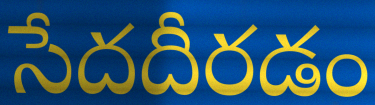
సేదదీరడం